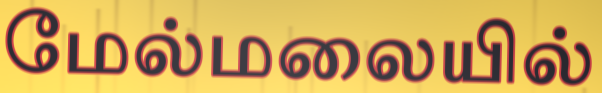
மேல்மலையில்